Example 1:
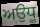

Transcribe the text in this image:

ਅਉਧੂ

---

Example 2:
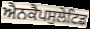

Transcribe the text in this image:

ਐਨਕੈਪਸੁਲੇਟਿਡ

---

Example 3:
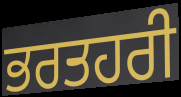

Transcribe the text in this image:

ਭਰਤਹਰੀ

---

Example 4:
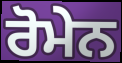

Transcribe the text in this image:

ਰੋਮੇਨ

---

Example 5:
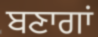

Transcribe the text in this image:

ਬਣਾਗਾਂ